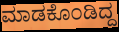
ಮಾಡಕೊಂಡಿದ್ದ